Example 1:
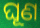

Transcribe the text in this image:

ଘୂଣ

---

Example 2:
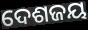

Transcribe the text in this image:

ଦେଶଜୟ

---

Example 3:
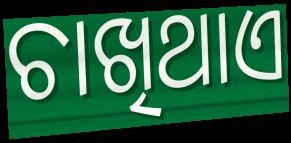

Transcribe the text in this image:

ଚାଖିଥାଏ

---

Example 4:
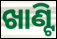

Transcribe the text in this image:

ଖାଣ୍ଟି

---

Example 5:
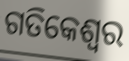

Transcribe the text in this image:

ଗତିକେଶ୍ବର